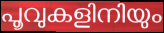
പൂവുകളിനിയും